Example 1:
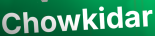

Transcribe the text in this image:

Chowkidar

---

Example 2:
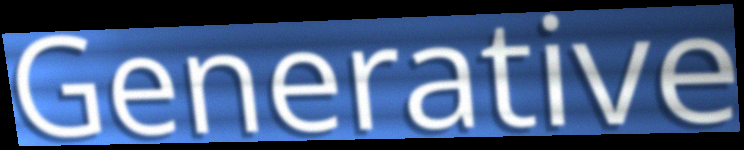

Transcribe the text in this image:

Generative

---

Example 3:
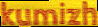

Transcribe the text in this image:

kumizh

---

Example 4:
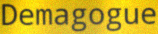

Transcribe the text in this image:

Demagogue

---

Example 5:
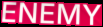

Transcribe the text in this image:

ENEMY